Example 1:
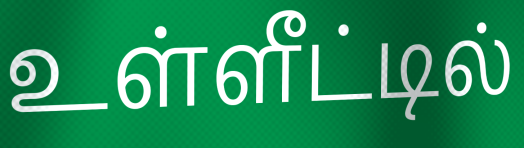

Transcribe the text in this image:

உள்ளீட்டில்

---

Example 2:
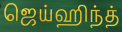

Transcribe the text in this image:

ஜெய்ஹிந்த்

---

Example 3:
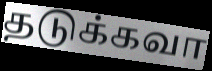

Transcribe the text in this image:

தடுக்கவா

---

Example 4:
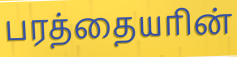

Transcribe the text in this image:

பரத்தையரின்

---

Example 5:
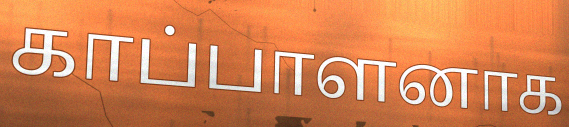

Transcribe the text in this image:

காப்பாளனாக